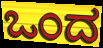
ಒಂದ